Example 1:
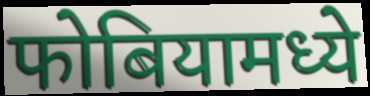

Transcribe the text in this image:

फोबियामध्ये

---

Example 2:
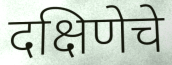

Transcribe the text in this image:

दक्षिणेचे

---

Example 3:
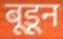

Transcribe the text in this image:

बूडून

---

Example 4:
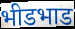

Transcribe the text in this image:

भीडभाड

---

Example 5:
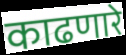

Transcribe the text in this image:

काढणारे